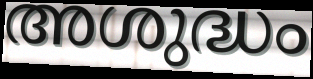
അശുദ്ധം